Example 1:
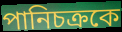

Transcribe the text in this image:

পানিচক্রকে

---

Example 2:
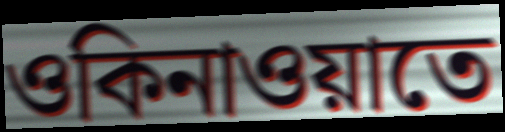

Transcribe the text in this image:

ওকিনাওয়াতে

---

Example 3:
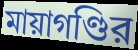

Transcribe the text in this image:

মায়াগণ্ডির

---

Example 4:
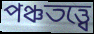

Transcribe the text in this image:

পঞ্চতত্ত্বে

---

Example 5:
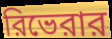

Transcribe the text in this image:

রিভেরার